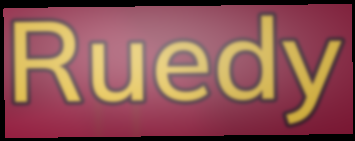
Ruedy